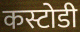
कस्टोडी